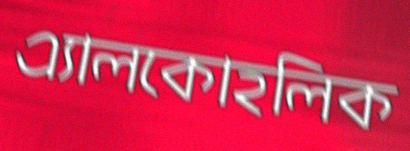
এ্যালকোহলিক